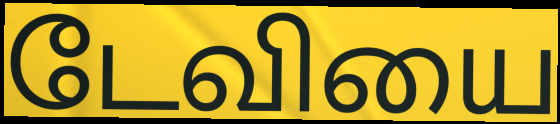
டேவியை